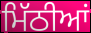
ਮਿੱਠੀਆਂ